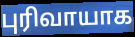
புரிவாயாக